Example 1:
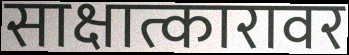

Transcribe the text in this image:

साक्षात्कारावर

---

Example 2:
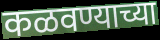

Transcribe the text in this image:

कळवण्याच्या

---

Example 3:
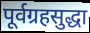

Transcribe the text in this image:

पूर्वग्रहसुद्धा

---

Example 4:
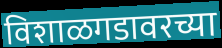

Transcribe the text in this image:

विशाळगडावरच्या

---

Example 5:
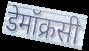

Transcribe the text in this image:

डेमॉक्रसी